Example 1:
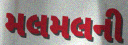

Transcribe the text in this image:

મલમલની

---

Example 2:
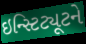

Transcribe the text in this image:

ઇન્સ્ટિટ્યૂટને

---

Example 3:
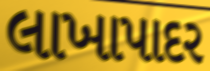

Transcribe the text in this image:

લાખાપાદર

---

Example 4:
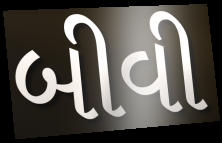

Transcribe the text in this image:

બીવી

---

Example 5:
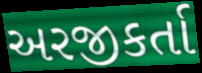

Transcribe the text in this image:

અરજીકર્તા